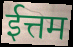
ईत्तम